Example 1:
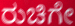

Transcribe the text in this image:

ರುಚಿಗೇ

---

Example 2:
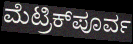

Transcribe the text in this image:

ಮೆಟ್ರಿಕ್‌ಪೂರ್ವ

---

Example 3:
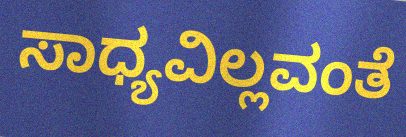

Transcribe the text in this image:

ಸಾಧ್ಯವಿಲ್ಲವಂತೆ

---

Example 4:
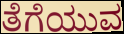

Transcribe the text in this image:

ತೆಗೆಯುವ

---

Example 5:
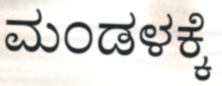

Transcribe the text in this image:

ಮಂಡಳಕ್ಕೆ